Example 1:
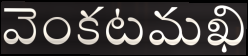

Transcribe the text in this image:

వెంకటమఖి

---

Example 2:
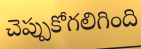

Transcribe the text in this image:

చెప్పుకోగలిగింది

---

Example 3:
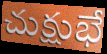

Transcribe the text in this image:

చుక్షుభే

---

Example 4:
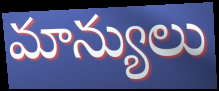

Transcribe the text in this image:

మాన్యులు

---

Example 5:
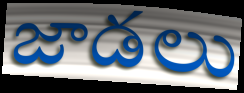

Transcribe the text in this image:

జాడలు